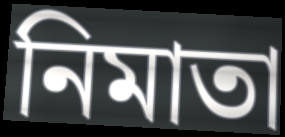
নিমাতা